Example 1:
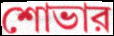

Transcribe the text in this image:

শোভার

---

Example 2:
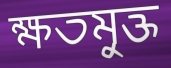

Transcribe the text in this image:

ক্ষতমুক্ত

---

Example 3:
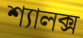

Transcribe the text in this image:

শ্যালক্স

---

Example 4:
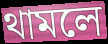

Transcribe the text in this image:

থামলে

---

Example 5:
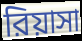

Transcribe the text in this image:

রিয়াসা